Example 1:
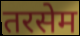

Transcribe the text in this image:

तरसेम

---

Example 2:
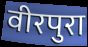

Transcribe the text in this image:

वीरपुरा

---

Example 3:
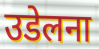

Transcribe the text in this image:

उडेलना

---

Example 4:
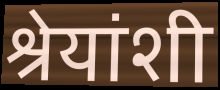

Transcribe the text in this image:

श्रेयांशी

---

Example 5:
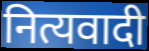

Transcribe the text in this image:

नित्यवादी